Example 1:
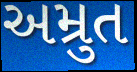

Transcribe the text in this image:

અમ્રુત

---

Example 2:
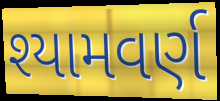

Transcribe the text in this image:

શ્યામવર્ણ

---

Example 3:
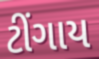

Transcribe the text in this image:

ટીંગાય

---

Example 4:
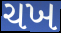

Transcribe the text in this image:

ચખ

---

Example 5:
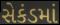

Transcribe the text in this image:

સેકંડમાં